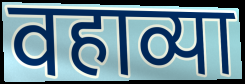
वहाव्या